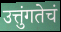
उत्तुंगतेचं